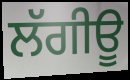
ਲੱਗੀਊ